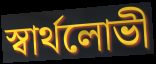
স্বার্থলোভী